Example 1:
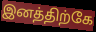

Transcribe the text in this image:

இனத்திற்கே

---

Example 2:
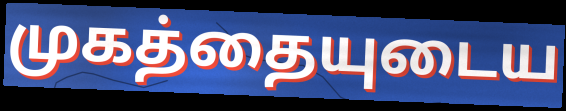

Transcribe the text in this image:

முகத்தையுடைய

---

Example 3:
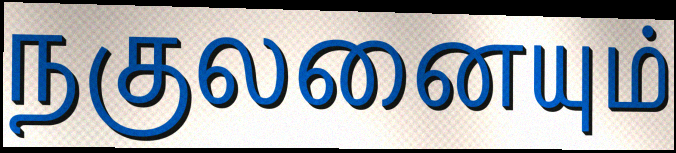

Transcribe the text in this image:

நகுலனையும்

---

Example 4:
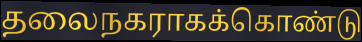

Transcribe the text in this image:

தலைநகராகக்கொண்டு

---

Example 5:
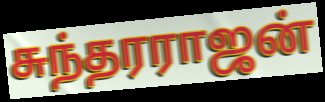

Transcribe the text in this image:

சுந்தரராஜன்